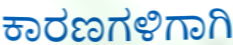
ಕಾರಣಗಳಿಗಾಗಿ